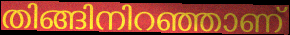
തിങ്ങിനിറഞ്ഞാണ്